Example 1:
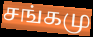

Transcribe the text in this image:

சங்கமு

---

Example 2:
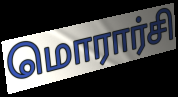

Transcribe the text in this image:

மொரார்சி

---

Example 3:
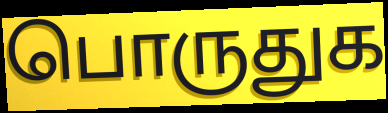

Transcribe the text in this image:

பொருதுக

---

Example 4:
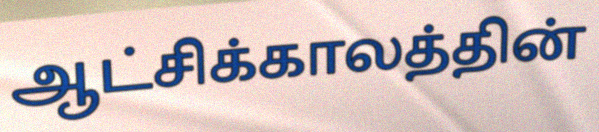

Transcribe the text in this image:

ஆட்சிக்காலத்தின்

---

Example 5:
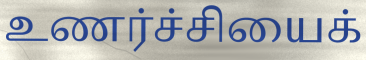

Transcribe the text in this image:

உணர்ச்சியைக்